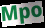
Mpo